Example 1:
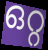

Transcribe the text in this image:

ഒറ്റ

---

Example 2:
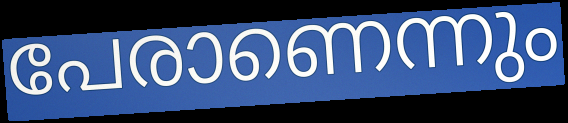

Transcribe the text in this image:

പേരാണെന്നും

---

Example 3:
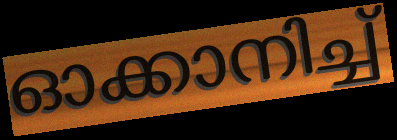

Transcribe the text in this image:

ഓക്കാനിച്ച്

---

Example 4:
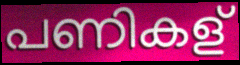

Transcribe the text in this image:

പണികള്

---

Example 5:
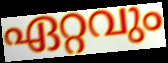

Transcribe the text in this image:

ഏറ്റവും